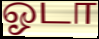
ஓடா